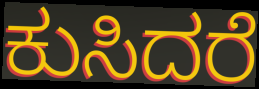
ಕುಸಿದರೆ